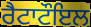
ਰੈਟਾਟੌਇਲ